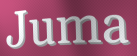
Juma